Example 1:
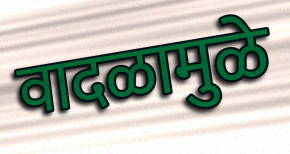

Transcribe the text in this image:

वादळामुळे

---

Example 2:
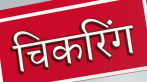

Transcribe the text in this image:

चिकरिंग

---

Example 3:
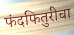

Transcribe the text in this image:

फंदफितुरीचा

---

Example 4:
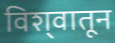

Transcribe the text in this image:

विश्वातून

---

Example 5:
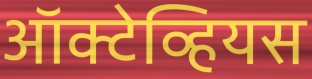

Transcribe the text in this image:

ऑक्टेव्हियस